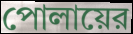
পোলায়ের